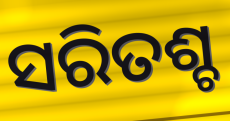
ସରିତଶ୍ଚ